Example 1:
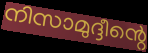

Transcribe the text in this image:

നിസാമുദ്ദീന്റെ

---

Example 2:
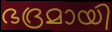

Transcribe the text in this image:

ഭദ്രമായി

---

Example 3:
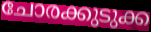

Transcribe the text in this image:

ചോരക്കുടുക്ക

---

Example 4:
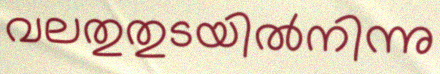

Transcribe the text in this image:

വലതുതുടയിൽനിന്നു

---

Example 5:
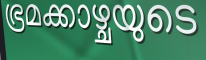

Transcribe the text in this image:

ഭ്രമക്കാഴ്ചയുടെ